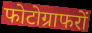
फोटोग्राफरों